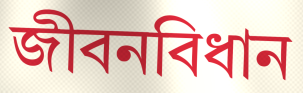
জীবনবিধান